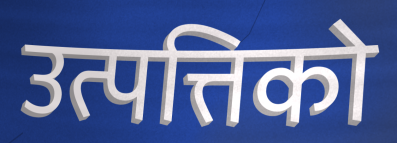
उत्पत्तिको